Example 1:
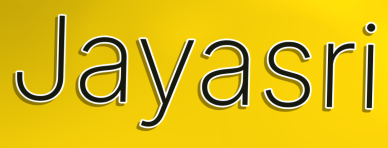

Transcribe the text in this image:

Jayasri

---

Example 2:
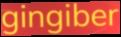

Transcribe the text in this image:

gingiber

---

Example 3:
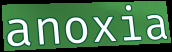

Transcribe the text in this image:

anoxia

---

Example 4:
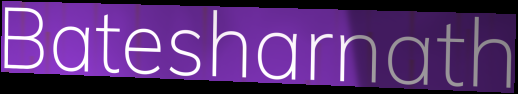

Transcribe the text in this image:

Batesharnath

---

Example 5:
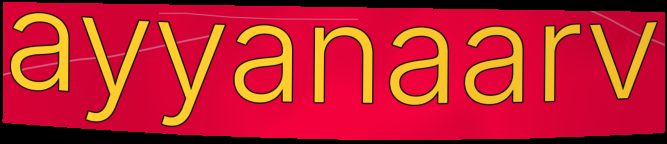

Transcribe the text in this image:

ayyanaarv